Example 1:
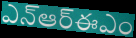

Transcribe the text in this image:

ఎన్ఆర్ఈఎం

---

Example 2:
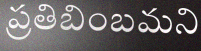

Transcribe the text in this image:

ప్రతిబింబమని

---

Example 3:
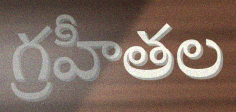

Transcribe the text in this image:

గ్రహీతల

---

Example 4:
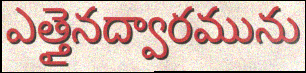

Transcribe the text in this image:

ఎత్తైనద్వారమును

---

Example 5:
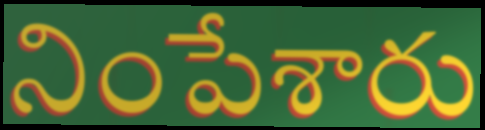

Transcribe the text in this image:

నింపేశారు